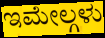
ಇಮೇಲ್ಗಳು